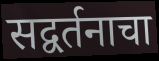
सद्वर्तनाचा